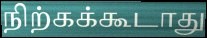
நிற்கக்கூடாது